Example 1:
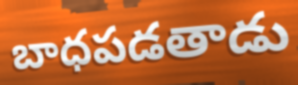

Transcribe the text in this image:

బాధపడతాడు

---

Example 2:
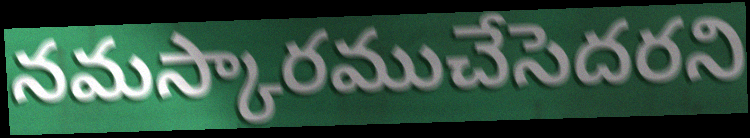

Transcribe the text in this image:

నమస్కారముచేసెదరని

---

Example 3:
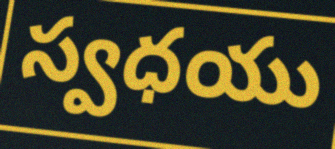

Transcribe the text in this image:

స్వధయు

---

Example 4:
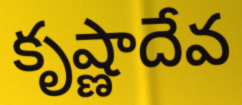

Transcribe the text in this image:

కృష్ణాదేవ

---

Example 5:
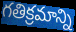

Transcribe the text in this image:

గతిక్రమాన్ని